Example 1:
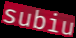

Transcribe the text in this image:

subiu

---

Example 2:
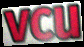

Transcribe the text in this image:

vcu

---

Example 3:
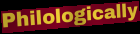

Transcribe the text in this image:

Philologically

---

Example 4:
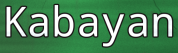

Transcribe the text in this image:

Kabayan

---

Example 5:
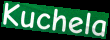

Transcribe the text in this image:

Kuchela